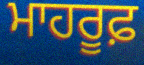
ਮਾਹਰੂਫ਼